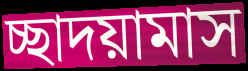
চ্ছাদয়ামাস